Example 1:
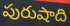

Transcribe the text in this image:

పురుషాది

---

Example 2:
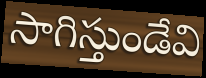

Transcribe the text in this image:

సాగిస్తుండేవి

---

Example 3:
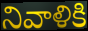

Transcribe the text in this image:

నివాళికి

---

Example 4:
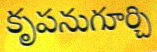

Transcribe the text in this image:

కృపనుగూర్చి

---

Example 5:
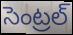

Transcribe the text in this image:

సెంట్రల్